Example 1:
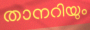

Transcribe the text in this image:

താനറിയും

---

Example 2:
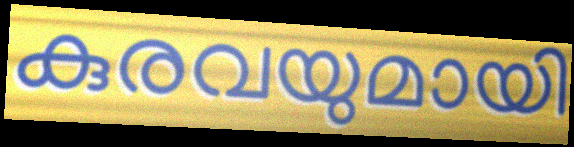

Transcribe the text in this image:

കുരവയുമായി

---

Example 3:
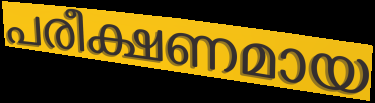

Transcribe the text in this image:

പരീക്ഷണമായ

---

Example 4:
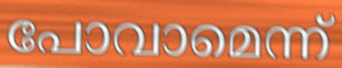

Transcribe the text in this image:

പോവാമെന്ന്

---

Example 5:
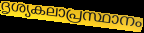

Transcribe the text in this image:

ദൃശ്യകലാപ്രസ്ഥാനം